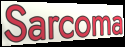
Sarcoma